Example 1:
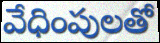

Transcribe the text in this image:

వేధింపులతో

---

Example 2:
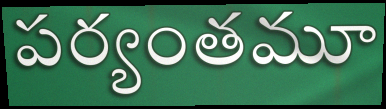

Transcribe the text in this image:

పర్యంతమూ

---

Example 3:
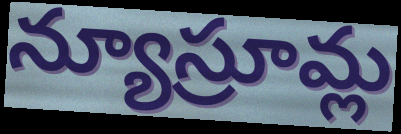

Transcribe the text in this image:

న్యూస్రూమ్ల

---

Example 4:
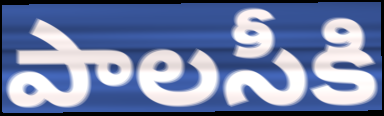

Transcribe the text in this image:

పాలసీకి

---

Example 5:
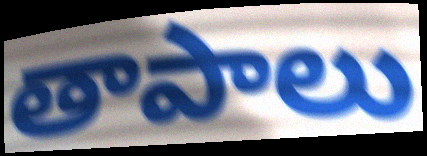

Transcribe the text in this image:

తాపాలు